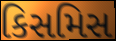
કિસમિસ